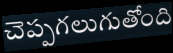
చెప్పగలుగుతోంది